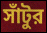
সাঁটুর